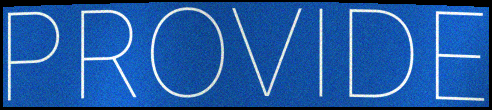
PROVIDE